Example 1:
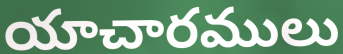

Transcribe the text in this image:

యాచారములు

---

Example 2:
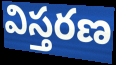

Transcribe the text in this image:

విస్తరణ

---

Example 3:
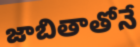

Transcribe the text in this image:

జాబితాతోనే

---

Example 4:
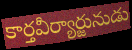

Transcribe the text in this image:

కార్తవీర్యార్జునుడు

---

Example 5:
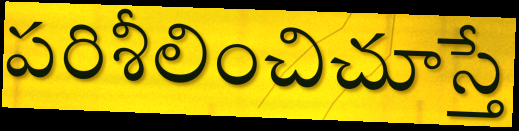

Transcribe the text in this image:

పరిశీలించిచూస్తే